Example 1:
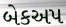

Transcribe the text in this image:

બેકઅપ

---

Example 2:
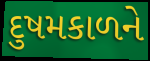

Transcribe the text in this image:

દુષમકાળને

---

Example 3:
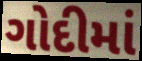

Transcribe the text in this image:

ગોદીમાં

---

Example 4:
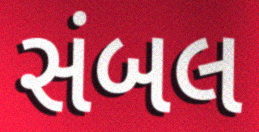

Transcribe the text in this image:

સંબલ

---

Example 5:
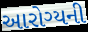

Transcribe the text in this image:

આરોગ્યની